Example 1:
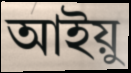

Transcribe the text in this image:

আইয়ু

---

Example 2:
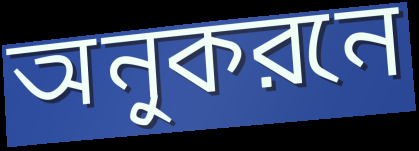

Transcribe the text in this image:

অনুকরনে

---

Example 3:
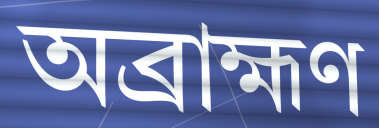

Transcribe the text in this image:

অব্রাহ্মণ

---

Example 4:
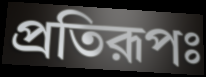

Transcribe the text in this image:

প্রতিরূপঃ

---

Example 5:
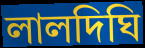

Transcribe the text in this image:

লালদিঘি